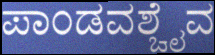
ಪಾಂಡವಶ್ಚೈವ